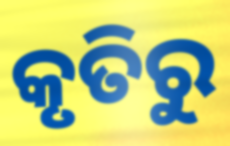
କୃତିରୁ